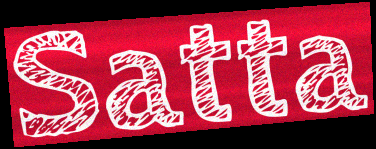
Satta